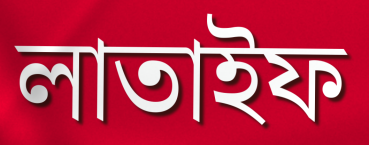
লাতাইফ